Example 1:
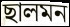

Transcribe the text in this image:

ছালমন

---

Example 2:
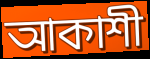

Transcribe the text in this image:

আকাশী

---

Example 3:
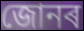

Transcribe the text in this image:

জোনৰ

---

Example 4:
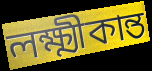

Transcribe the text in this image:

লক্ষ্মীকান্ত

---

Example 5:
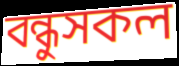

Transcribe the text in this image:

বন্ধুসকল